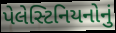
પેલેસ્ટિનિયનોનું